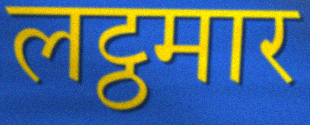
लट्ठमार